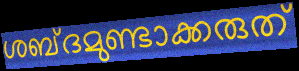
ശബ്ദമുണ്ടാക്കരുത്